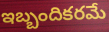
ఇబ్బందికరమే